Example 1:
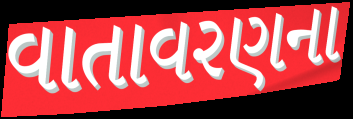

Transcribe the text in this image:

વાતાવરણના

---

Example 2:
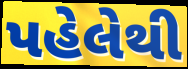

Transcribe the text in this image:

પહેલેથી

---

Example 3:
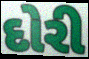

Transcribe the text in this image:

દોરી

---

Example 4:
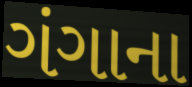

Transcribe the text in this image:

ગંગાના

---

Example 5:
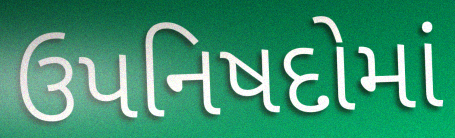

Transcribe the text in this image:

ઉપનિષદોમાં